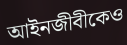
আইনজীবীকেও